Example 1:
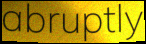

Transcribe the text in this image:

abruptly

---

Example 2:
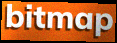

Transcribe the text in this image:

bitmap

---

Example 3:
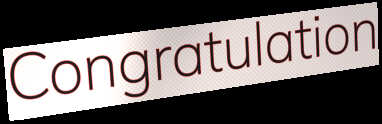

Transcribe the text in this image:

Congratulation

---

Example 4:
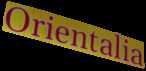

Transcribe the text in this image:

Orientalia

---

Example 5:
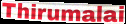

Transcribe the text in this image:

Thirumalai